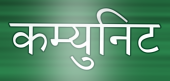
कम्युनिट